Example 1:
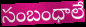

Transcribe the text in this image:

సంబంధాలే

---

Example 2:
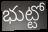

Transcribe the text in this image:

భుట్టో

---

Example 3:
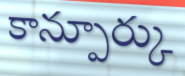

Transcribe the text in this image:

కాన్పూర్కు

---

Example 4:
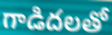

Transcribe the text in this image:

గాడిదలతో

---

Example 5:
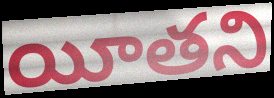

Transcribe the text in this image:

యీతని